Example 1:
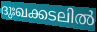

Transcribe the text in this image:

ദുഃഖക്കടലിൽ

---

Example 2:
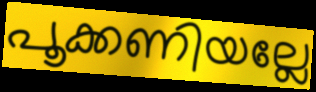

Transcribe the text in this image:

പൂക്കണിയല്ലേ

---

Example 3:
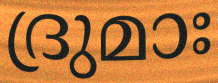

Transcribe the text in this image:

ദ്രുമാഃ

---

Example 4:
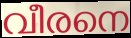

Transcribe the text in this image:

വീരനെ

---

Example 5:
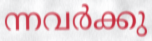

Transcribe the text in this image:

ന്നവർക്കു